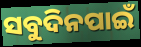
ସବୁଦିନପାଇଁ